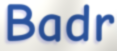
Badr